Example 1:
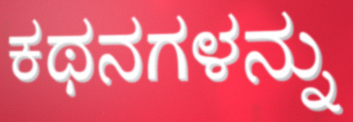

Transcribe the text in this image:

ಕಥನಗಳನ್ನು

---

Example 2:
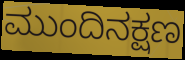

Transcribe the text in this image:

ಮುಂದಿನಕ್ಷಣ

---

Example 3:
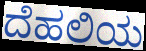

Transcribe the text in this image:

ದೆಹಲಿಯ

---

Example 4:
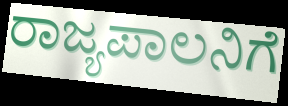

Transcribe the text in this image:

ರಾಜ್ಯಪಾಲನಿಗೆ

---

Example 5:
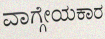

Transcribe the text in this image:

ವಾಗ್ಗೇಯಕಾರ